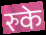
रुके